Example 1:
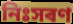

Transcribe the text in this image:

নিঃসৰণ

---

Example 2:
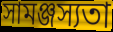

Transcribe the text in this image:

সামঞ্জস্যতা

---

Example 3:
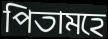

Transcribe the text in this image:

পিতামহে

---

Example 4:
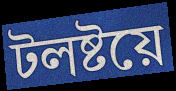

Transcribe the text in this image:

টলষ্টয়ে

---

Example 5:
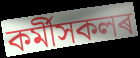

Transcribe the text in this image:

কৰ্মীসকলৰ